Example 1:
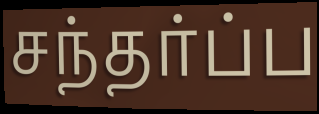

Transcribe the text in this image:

சந்தர்ப்ப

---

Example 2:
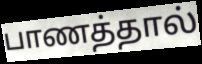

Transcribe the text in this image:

பாணத்தால்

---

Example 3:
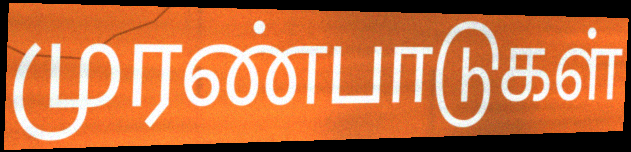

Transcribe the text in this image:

முரண்பாடுகள்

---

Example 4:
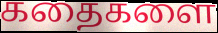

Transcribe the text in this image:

கதைகளை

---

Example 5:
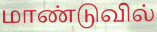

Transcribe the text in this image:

மாண்டுவில்